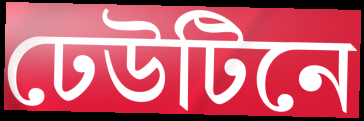
ঢেউটিনে